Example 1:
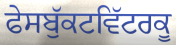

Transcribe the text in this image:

ਫੇਸਬੁੱਕਟਵਿੱਟਰਕੂ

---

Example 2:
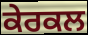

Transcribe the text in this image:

ਕੇਰਕਲ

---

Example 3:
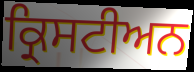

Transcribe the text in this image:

ਕ੍ਰਿਸਟੀਅਨ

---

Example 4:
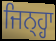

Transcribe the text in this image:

ਜਿਨ੍ਹ੍ਹਾ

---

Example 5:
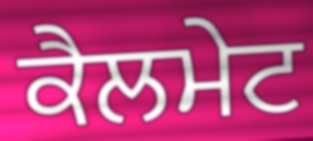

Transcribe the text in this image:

ਕੈਲਮੇਟ